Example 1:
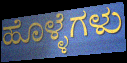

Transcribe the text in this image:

ಹೊಳ್ಳೆಗಳು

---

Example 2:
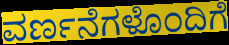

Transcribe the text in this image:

ವರ್ಣನೆಗಳೊಂದಿಗೆ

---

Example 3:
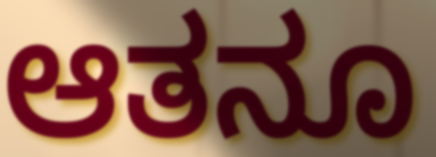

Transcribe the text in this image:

ಆತನೂ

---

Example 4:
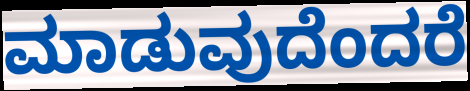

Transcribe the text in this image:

ಮಾಡುವುದೆಂದರೆ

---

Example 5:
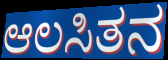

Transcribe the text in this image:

ಆಲಸಿತನ